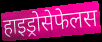
हाइड्रोसेफेलस